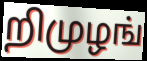
றிமுழங்